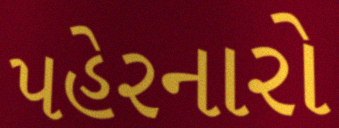
પહેરનારો